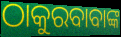
ଠାକୁରବାବାଙ୍କ